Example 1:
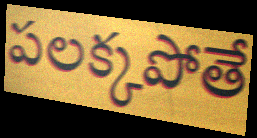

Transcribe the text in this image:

పలక్కపోతే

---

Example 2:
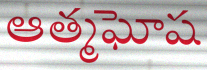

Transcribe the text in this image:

ఆత్మఘోష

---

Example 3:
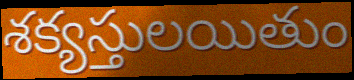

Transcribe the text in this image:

శక్యస్తులయితుం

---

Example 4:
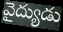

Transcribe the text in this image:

వైద్యుడు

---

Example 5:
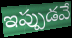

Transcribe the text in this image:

ఇప్పుడవే